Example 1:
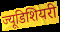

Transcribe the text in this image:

ज्यूडिशियरी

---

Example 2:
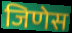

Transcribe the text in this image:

जिणेस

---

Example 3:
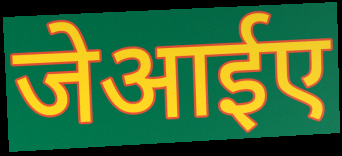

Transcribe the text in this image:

जेआईए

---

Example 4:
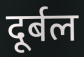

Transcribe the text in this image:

दूर्बल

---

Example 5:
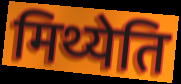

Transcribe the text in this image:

मिथ्येति